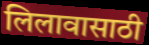
लिलावासाठी